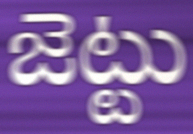
జెట్టు